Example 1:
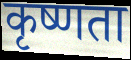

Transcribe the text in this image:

कृष्णता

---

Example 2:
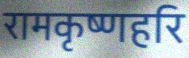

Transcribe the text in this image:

रामकृष्णहरि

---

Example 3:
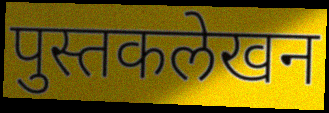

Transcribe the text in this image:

पुस्तकलेखन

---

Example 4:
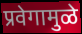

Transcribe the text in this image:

प्रवेगामुळे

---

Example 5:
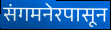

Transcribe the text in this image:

संगमनेरपासून